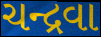
ચન્દ્રવા